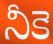
నీకె